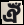
ঐঁ